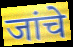
जांचे